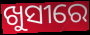
ଖୁସୀରେ